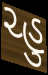
ચ્હુ